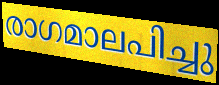
രാഗമാലപിച്ചു